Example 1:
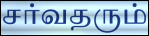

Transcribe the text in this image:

சர்வதரும்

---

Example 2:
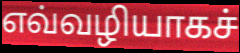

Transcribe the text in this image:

எவ்வழியாகச்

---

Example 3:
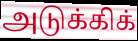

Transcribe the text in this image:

அடுக்கிக்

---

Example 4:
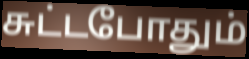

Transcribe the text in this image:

சுட்டபோதும்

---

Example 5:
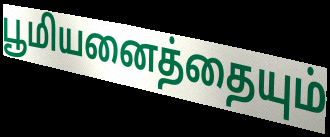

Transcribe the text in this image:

பூமியனைத்தையும்